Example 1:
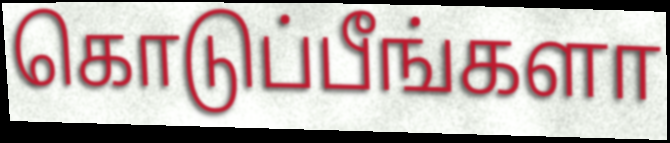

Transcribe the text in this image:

கொடுப்பீங்களா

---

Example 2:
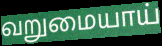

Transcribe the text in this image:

வறுமையாய்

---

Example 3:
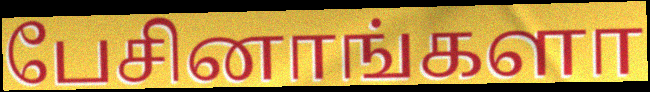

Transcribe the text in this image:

பேசினாங்களா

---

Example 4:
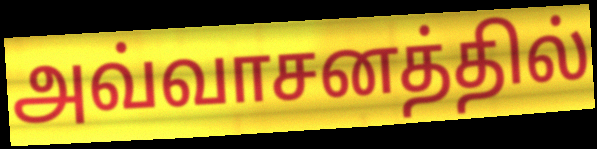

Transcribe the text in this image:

அவ்வாசனத்தில்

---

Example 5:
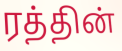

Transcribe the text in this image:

ரத்தின்